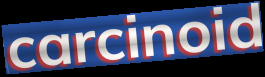
carcinoid